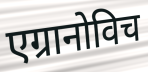
एग्रानोविच